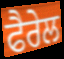
ਫੈਰੇਲ